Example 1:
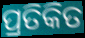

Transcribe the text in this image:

ପ୍ରତିକିତ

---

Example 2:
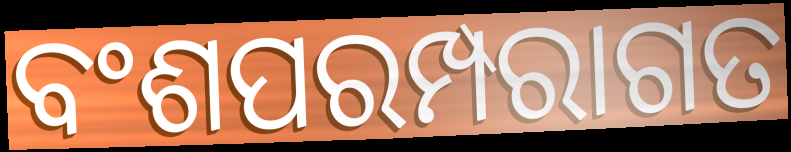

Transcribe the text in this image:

ବଂଶପରମ୍ପରାଗତ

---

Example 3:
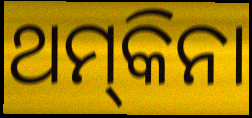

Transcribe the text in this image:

ଥମ୍‍କିନା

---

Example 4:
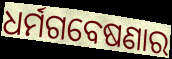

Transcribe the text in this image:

ଧର୍ମଗବେଷଣାର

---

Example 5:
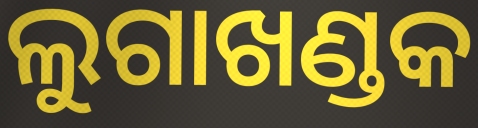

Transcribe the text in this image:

ଲୁଗାଖଣ୍ଡକ